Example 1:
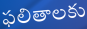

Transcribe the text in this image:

ఫలితాలకు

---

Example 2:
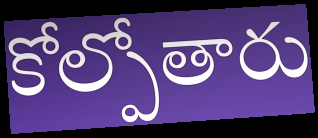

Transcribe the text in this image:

కోల్పోతారు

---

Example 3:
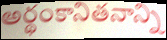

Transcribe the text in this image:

అర్థంకానితనాన్ని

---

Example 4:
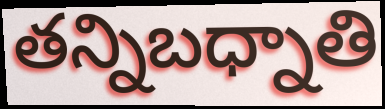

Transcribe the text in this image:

తన్నిబధ్నాతి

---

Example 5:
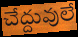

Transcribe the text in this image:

చేద్దువులే